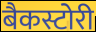
बैकस्टोरी